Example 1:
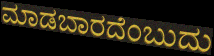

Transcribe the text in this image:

ಮಾಡಬಾರದೆಂಬುದು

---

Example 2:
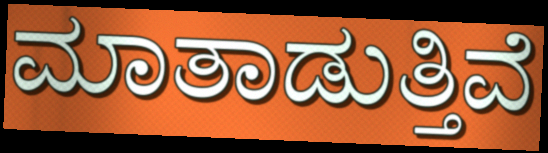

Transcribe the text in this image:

ಮಾತಾಡುತ್ತಿವೆ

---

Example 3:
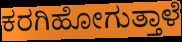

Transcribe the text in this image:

ಕರಗಿಹೋಗುತ್ತಾಳೆ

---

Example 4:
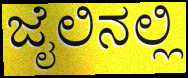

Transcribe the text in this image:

ಜೈಲಿನಲ್ಲಿ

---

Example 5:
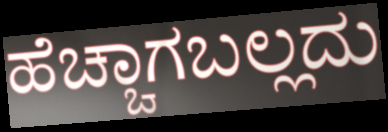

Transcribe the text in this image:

ಹೆಚ್ಚಾಗಬಲ್ಲದು